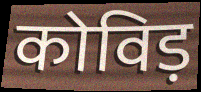
कोविड़